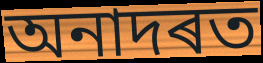
অনাদৰত